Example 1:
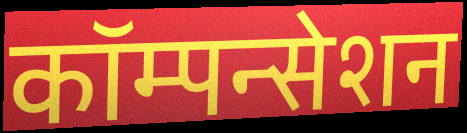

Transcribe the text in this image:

कॉम्पन्सेशन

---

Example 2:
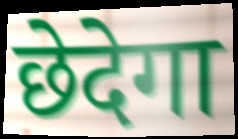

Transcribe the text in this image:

छेदेगा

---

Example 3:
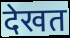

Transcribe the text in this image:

देखत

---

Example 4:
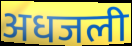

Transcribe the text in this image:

अधजली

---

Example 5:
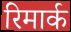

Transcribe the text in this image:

रिमार्क